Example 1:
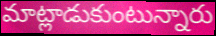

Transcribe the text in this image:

మాట్లాడుకుంటున్నారు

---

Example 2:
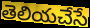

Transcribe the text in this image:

తెలియచేసే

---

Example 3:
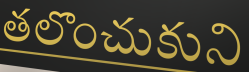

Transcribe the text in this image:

తలొంచుకుని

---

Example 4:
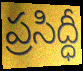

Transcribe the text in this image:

ప్రసిద్ధీ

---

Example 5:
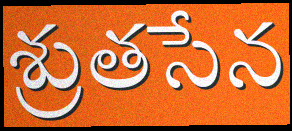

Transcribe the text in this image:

శ్రుతసేన